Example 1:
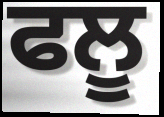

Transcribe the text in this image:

ਫਲੂ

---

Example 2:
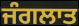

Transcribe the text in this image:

ਜੰਗਲਾਤ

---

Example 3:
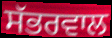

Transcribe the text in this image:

ਸੱਭਰਵਾਲ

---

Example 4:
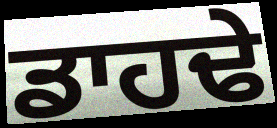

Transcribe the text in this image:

ਡਾਹਢੇ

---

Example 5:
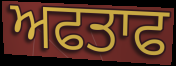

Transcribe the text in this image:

ਅਫਤਾਫ